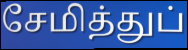
சேமித்துப்